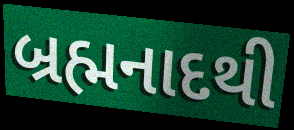
બ્રહ્મનાદથી